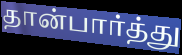
தான்பார்த்து